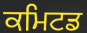
ਕਮਿਟਡ